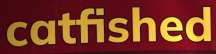
catfished